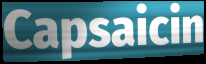
Capsaicin